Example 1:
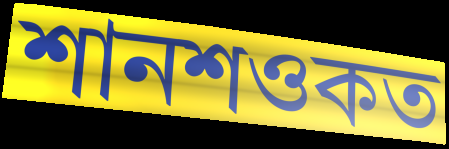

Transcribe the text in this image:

শানশওকত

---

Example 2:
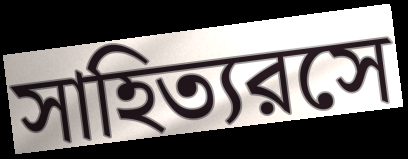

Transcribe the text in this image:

সাহিত্যরসে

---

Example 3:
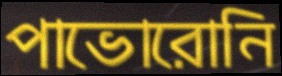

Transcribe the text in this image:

পাভোরোনি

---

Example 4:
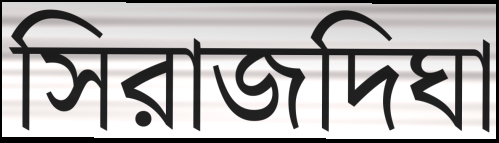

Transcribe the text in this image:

সিরাজদিঘা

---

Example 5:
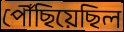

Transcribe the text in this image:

পৌঁছিয়েছিল